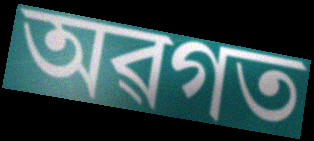
অৱগত